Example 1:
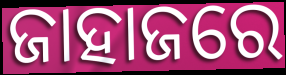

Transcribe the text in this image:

ଜାହାଜରେ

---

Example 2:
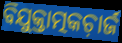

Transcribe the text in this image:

ବିଯୁକ୍ତାତ୍ମକଚ଼ାର୍ଜ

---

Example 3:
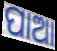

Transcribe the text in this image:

ପାଆ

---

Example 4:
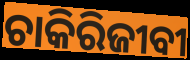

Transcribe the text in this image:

ଚାକିରିଜୀବୀ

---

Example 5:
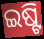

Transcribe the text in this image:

ଇଷ୍ଟି